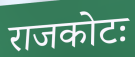
राजकोटः